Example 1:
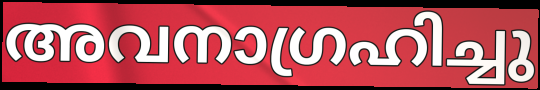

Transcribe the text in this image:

അവനാഗ്രഹിച്ചു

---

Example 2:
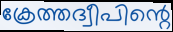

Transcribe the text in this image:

ക്രേത്തദ്വീപിന്റെ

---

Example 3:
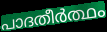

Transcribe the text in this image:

പാദതീർത്ഥം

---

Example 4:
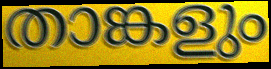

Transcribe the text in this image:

താങ്കളും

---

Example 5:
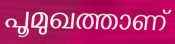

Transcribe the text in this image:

പൂമുഖത്താണ്